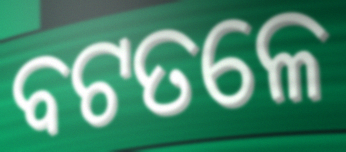
ବଟତଳେ